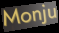
Monju